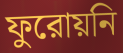
ফুরোয়নি